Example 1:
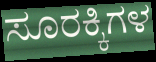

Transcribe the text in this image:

ಸೂರಕ್ಕಿಗಳ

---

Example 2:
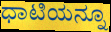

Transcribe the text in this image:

ಧಾಟಿಯನ್ನೂ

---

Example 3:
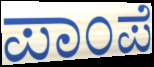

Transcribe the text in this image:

ಪಾಂಪೆ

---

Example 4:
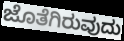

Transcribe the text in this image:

ಜೊತೆಗಿರುವುದು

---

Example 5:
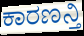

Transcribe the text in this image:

ಕಾರಣನ್ತಿ